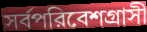
সর্বপরিবেশগ্রাসী